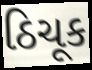
ઠિચૂક